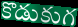
కొడుకుగ